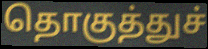
தொகுத்துச்